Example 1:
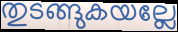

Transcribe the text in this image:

തുടങ്ങുകയല്ലേ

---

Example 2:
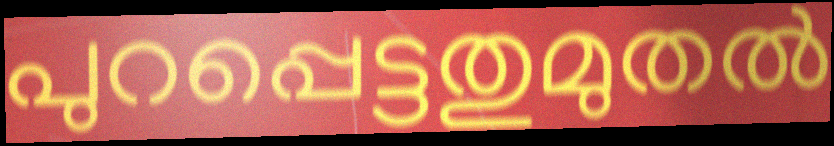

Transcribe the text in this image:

പുറപ്പെട്ടതുമുതൽ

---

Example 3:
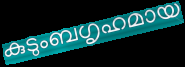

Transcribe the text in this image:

കുടുംബഗൃഹമായ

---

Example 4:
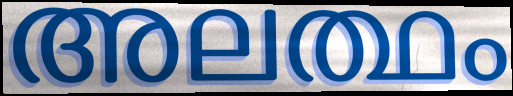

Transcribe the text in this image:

അലത്ഥം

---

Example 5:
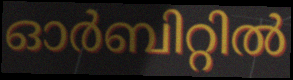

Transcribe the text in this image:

ഓർബിറ്റിൽ